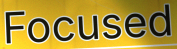
Focused